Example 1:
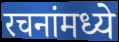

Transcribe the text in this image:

रचनांमध्ये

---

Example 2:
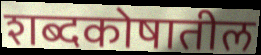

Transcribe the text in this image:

शब्दकोषातील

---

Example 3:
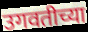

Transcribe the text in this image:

उगवतीच्या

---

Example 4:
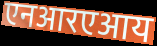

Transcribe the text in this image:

एनआरएआय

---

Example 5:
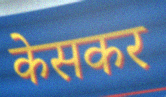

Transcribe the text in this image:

केसकर